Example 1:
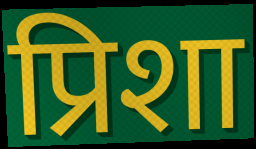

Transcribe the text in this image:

प्रिशा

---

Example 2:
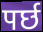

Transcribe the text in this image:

पर्छ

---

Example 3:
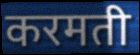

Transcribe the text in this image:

करमती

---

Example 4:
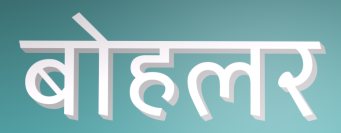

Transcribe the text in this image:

बोहलर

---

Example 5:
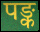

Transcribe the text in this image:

पङ्क